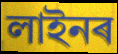
লাইনৰ